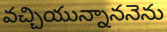
వచ్చియున్నాననెను